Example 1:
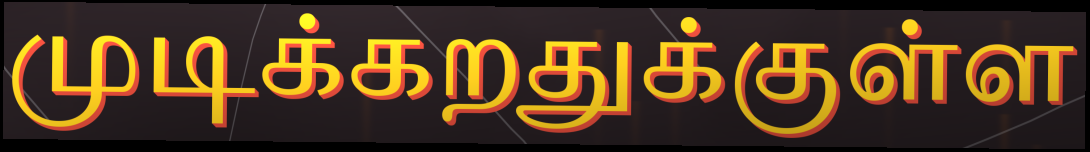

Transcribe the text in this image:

முடிக்கறதுக்குள்ள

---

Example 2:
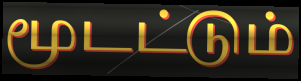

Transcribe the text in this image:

மூடட்டும்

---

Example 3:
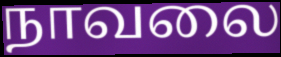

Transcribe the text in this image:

நாவலை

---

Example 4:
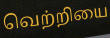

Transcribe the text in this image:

வெற்றியை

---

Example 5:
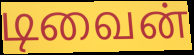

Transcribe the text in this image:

டிவைன்